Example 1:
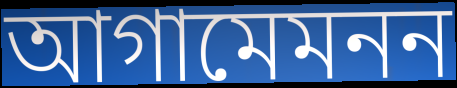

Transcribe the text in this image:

আগামেমনন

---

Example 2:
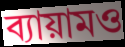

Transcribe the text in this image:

ব্যায়ামও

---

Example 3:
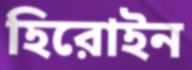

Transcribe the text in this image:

হিরোইন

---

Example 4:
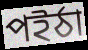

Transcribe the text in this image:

পইঠা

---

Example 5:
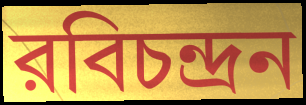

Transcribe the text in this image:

রবিচন্দ্রন